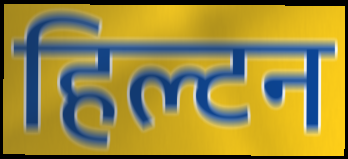
हिल्टन